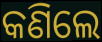
କଣିଲେ